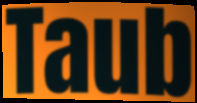
Taub